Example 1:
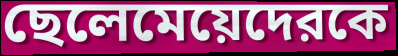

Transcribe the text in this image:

ছেলেমেয়েদেরকে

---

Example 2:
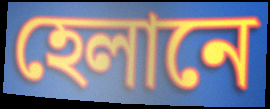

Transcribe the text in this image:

হেলানে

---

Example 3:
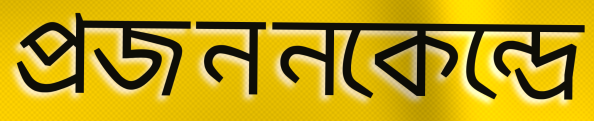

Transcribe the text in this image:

প্রজননকেন্দ্রে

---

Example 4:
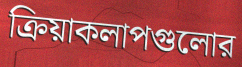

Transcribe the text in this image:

ক্রিয়াকলাপগুলোর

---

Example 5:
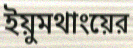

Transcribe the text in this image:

ইয়ুমথাংয়ের